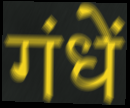
गंधें